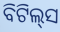
ବିଟିଲ୍‌ସ